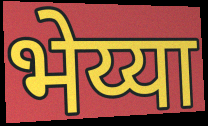
भेय्या